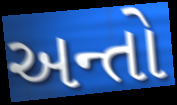
અન્તો